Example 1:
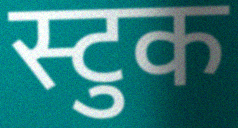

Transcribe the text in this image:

स्टुक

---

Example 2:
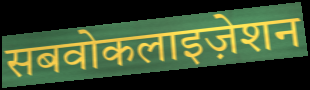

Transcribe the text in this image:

सबवोकलाइज़ेशन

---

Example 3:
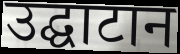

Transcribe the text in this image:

उद्घाटान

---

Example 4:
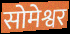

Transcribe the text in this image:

सोमेश्वर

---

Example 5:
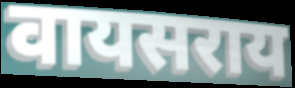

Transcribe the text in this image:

वायसराय